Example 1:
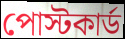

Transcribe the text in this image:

পোস্টকার্ড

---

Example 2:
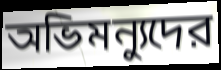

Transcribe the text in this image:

অভিমন্যুদের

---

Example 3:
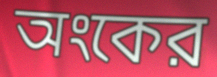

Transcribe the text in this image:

অংকের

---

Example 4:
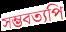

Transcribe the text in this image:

সম্ভবত্যপি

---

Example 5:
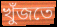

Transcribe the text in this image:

খুঁজতে